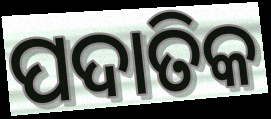
ପଦାତିକ